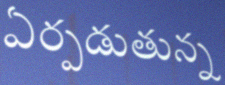
ఏర్పడుతున్న